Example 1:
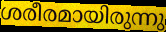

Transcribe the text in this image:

ശരീരമായിരുന്നു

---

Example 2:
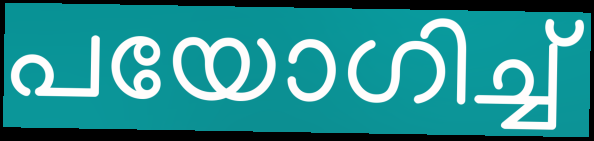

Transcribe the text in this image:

പയോഗിച്ച്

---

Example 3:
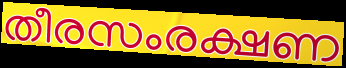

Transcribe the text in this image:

തീരസംരക്ഷണ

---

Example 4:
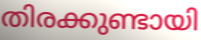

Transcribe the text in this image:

തിരക്കുണ്ടായി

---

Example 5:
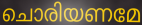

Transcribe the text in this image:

ചൊരിയണമേ